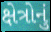
ક્ષેત્રોનું